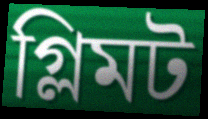
গ্লিমট